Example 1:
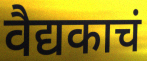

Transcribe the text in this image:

वैद्यकाचं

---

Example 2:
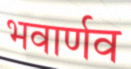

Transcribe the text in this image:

भवार्णव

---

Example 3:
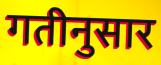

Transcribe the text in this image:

गतीनुसार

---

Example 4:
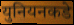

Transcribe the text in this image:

युनियनकडे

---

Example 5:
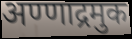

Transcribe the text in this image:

अण्णाद्रमुक